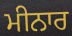
ਮੀਨਾਰ